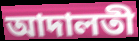
আদালতী